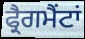
ਫ੍ਰੈਗਮੈਂਟਾਂ